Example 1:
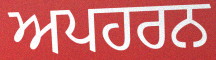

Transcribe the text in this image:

ਅਪਹਰਨ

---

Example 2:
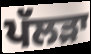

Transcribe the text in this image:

ਪੱਲੜਾ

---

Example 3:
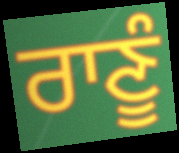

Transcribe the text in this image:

ਰਾਣੂੰ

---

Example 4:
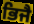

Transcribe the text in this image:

ਭਿਜੈ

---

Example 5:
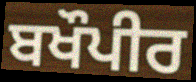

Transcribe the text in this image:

ਬਖੌਪੀਰ